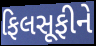
ફિલસૂફીને